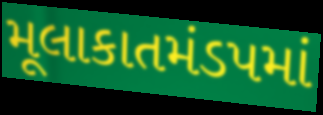
મૂલાકાતમંડપમાં